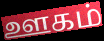
ஊகம்